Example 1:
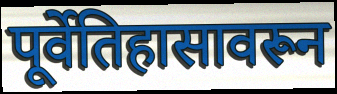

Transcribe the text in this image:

पूर्वेतिहासावरून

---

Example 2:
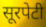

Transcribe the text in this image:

सूरपेटी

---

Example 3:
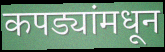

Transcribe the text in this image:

कपड्यांमधून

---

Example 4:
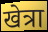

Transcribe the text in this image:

खेत्रा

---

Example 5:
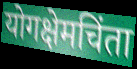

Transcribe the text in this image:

योगक्षेमचिंता